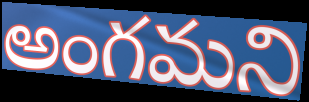
అంగమని